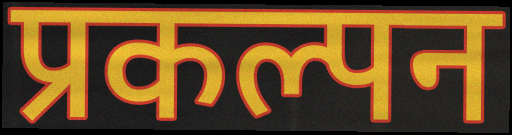
प्रकल्पन